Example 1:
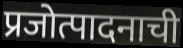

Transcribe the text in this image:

प्रजोत्पादनाची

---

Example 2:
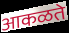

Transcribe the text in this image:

आकळते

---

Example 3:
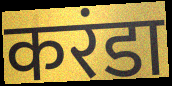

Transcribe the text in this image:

करंडा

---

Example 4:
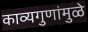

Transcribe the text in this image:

काव्यगुणांमुळे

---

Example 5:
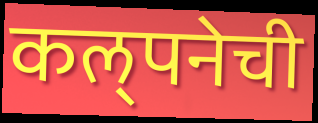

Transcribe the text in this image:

कल्पनेची